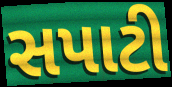
સપાટી